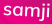
samji